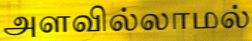
அளவில்லாமல்